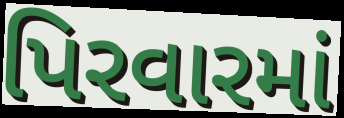
પિરવારમાં